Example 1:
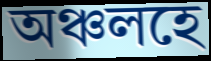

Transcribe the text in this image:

অঞ্চলহে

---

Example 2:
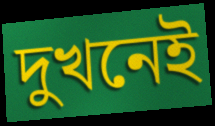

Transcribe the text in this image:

দুখনেই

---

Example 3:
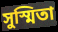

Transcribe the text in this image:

সুস্মিতা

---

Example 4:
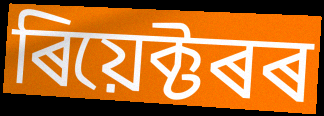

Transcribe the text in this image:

ৰিয়েক্টৰৰ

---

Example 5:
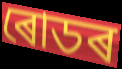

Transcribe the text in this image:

ৰোডৰ